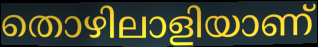
തൊഴിലാളിയാണ്